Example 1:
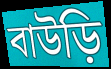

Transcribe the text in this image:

বাউড়ি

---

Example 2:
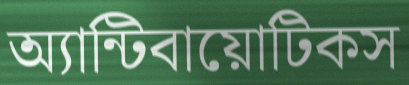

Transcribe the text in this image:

অ্যান্টিবায়োটিকস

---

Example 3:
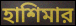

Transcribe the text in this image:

হাশিমার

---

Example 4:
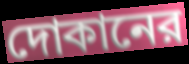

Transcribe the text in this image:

দোকানের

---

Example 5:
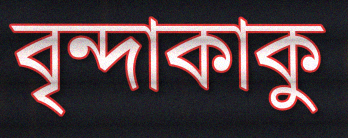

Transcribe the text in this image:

বৃন্দাকাকু